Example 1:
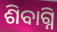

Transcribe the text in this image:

ଶିବାଗ୍ନି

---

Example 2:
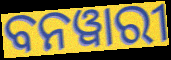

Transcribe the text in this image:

ବନୱାରୀ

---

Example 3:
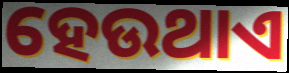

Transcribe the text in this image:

ହେଉଥାଏ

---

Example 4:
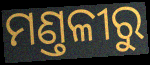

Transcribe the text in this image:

ମଣ୍ତଳୀରୁ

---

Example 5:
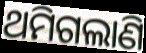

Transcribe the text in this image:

ଥମିଗଲାଣି